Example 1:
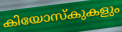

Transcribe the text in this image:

കിയോസ്കുകളും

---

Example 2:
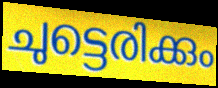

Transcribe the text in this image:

ചുട്ടെരിക്കും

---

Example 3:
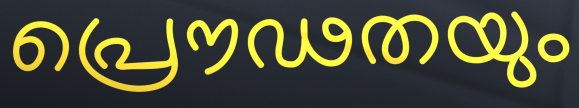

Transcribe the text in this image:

പ്രൌഢതയും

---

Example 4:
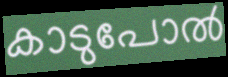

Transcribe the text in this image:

കാടുപോൽ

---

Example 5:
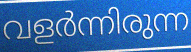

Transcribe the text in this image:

വളർന്നിരുന്ന